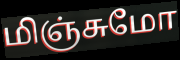
மிஞ்சுமோ